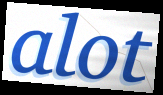
alot